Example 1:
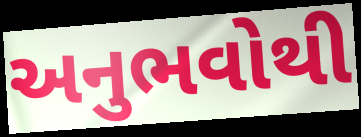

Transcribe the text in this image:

અનુભવોથી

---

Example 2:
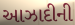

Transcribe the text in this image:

આઝાદીની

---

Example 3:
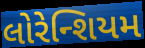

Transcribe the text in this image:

લોરેન્શિયમ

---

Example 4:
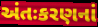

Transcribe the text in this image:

અંતઃકરણનાં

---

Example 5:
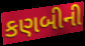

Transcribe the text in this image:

કણબીની